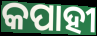
କପାହୀ